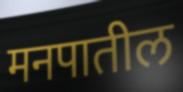
मनपातील